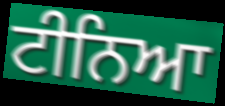
ਟੀਨਿਆ